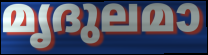
മൃദുലമാ